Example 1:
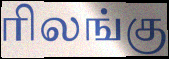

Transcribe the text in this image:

ரிலங்கு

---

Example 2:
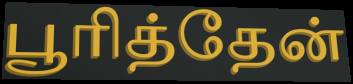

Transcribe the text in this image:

பூரித்தேன்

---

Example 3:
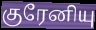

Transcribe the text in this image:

குரேனியு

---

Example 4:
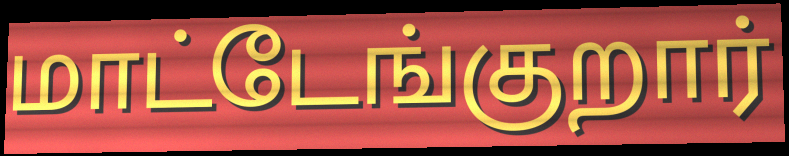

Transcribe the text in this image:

மாட்டேங்குறார்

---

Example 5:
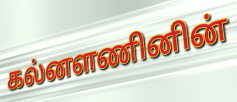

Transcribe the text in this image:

கல்னளணினின்